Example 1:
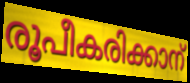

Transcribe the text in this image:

രൂപീകരിക്കാന്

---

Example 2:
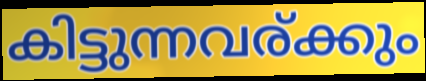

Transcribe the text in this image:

കിട്ടുന്നവര്ക്കും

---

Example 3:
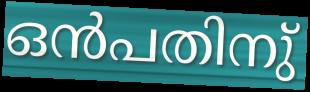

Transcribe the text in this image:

ഒൻപതിനു്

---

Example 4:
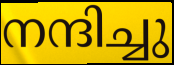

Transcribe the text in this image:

നന്ദിച്ചു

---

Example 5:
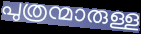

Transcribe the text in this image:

പുത്രന്മാരുള്ള